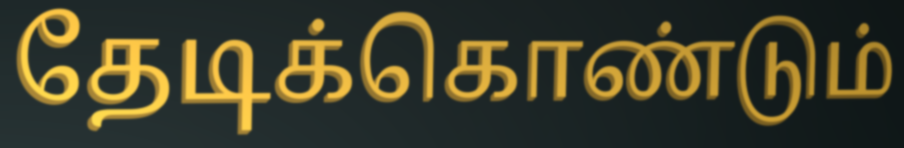
தேடிக்கொண்டும்